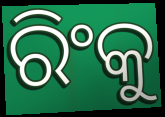
ରିଂକୁ